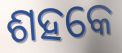
ଶହକେ